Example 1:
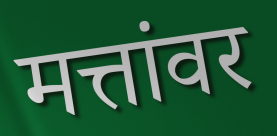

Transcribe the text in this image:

मत्तांवर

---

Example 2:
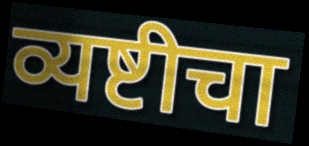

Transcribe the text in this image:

व्यष्टीचा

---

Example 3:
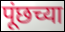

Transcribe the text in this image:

पूंछच्या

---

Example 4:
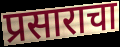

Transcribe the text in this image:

प्रसाराचा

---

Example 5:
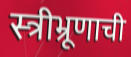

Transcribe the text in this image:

स्त्रीभ्रूणाची